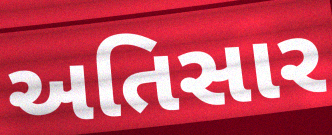
અતિસાર